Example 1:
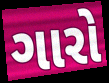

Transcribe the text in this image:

ગારો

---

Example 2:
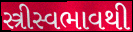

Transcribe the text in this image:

સ્ત્રીસ્વભાવથી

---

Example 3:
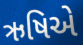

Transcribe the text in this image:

ઋષિએ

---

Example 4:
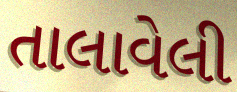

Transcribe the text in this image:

તાલાવેલી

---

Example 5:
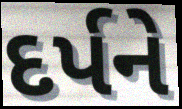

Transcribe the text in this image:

દર્પને